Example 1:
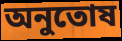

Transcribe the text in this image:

অনুতোষ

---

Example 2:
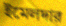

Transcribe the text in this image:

ইমেলদার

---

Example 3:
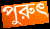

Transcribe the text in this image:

পুরুৎ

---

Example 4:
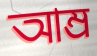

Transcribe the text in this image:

আম্র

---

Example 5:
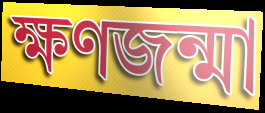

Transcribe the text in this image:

ক্ষণজন্মা